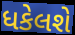
ધકેલશે